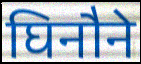
घिनौने